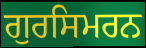
ਗੁਰਸਿਮਰਨ